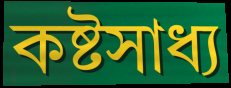
কষ্টসাধ্য